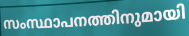
സംസ്ഥാപനത്തിനുമായി